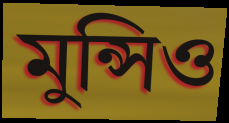
মুন্সিও